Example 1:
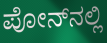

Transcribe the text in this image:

ಪೋನ್‍ನಲ್ಲಿ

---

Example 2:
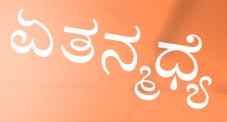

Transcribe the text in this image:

ಏತನ್ಮಧ್ಯೆ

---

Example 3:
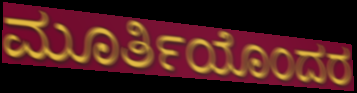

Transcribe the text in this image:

ಮೂರ್ತಿಯೊಂದರ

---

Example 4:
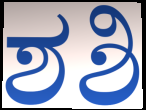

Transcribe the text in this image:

ಶಶಿ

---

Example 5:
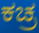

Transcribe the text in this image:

ಕಚ್ರ